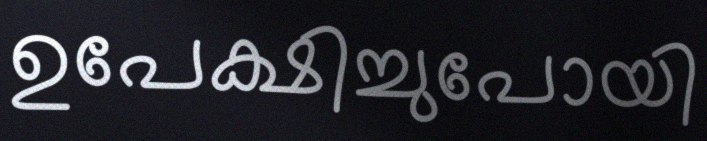
ഉപേക്ഷിച്ചുപോയി